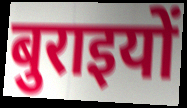
बुराइयों